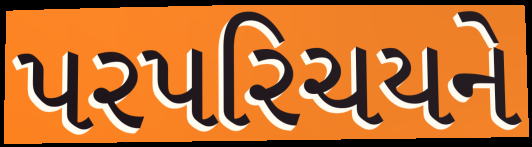
પરપરિચયને